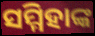
ସମ୍ମିହାଙ୍କ